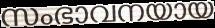
സംഭാവനയായ